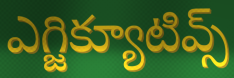
ఎగ్జిక్యూటివ్స్